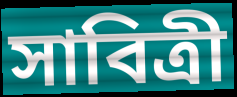
সাবিত্ৰী